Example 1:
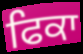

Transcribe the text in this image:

ਫਿਕਾ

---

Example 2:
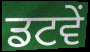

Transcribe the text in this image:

ਡਟਵੇਂ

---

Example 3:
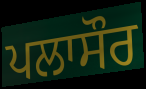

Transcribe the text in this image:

ਪਲਾਸੌਰ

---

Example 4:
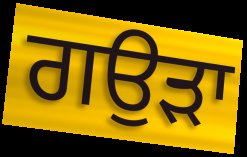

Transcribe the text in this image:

ਗਉੜਾ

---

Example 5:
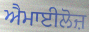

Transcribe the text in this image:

ਐਮਾਈਲੋਜ਼